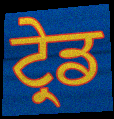
ਟ੍ਰੇਡ